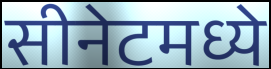
सीनेटमध्ये